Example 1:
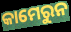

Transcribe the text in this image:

କାମେରୁନ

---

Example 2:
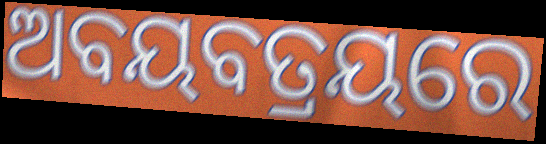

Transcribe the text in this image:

ଅବୟବତ୍ରୟରେ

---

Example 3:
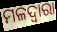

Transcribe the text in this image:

ମଳଦ୍ଵାରା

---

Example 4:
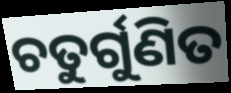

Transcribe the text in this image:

ଚତୁର୍ଗୁଣିତ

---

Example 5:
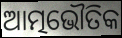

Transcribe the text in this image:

ଆତ୍ମଭୌତିକ